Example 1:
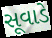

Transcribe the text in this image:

સૂવાડે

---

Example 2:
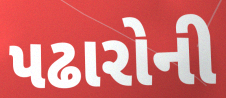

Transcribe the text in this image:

પઢારોની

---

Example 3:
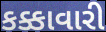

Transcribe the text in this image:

કક્કાવારી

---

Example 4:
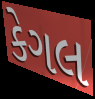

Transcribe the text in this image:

કેગલ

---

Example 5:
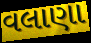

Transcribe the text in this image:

વલાણા